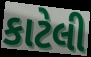
કાટેલી